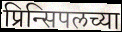
प्रिन्सिपलच्या